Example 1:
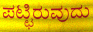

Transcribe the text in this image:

ಪಟ್ಟಿರುವುದು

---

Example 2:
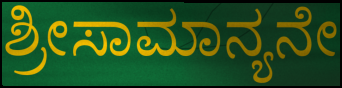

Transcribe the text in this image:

ಶ್ರೀಸಾಮಾನ್ಯನೇ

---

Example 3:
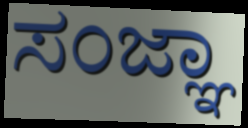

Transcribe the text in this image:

ಸಂಜ್ಞಾ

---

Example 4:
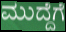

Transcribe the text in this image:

ಮುದ್ದೆಗೆ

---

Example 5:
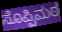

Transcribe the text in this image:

ಸೊಪ್ಪಿಮಠ